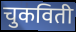
चुकविती